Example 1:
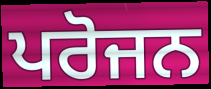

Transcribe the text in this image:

ਪਰੋਜਨ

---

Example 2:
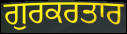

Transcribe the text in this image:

ਗੁਰਕਰਤਾਰ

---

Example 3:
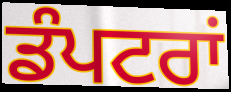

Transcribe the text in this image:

ਡੰਪਟਰਾਂ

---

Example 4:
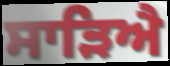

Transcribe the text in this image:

ਸਾੜਿਐ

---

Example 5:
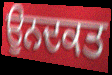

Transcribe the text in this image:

ਉਨਦਕਤ